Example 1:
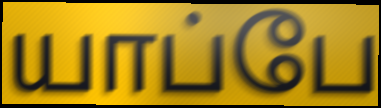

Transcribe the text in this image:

யாப்பே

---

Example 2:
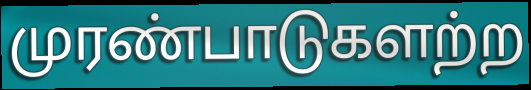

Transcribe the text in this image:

முரண்பாடுகளற்ற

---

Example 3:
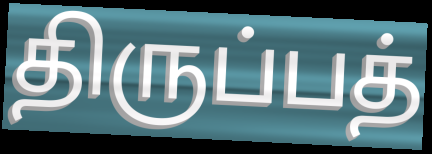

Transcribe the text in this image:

திருப்பத்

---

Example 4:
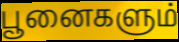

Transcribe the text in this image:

பூனைகளும்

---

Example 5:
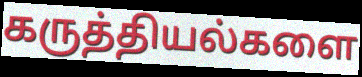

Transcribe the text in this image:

கருத்தியல்களை